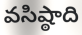
వసిష్ఠాది